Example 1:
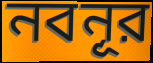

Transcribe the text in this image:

নবনূর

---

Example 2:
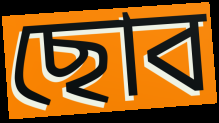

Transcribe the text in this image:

ছোব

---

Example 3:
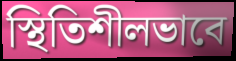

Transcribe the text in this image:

স্থিতিশীলভাবে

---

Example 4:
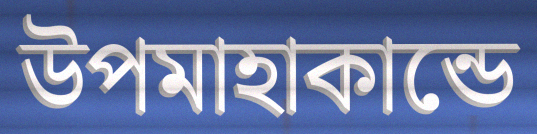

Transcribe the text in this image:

উপমাহাকান্ডে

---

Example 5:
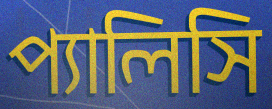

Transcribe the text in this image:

প্যালিসি